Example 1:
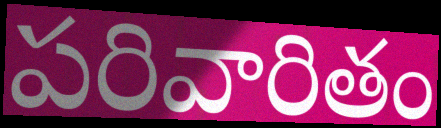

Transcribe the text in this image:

పరివారితం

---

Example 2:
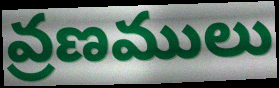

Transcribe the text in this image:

వ్రణములు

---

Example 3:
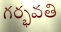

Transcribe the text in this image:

గర్భవతి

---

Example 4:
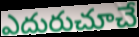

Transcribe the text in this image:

ఎదురుచూచే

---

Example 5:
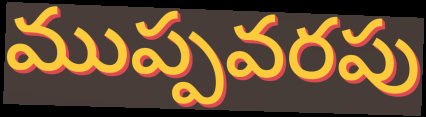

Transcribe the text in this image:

ముప్పవరపు